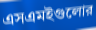
এসএমইগুলোর